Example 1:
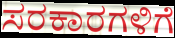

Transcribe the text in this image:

ಸರಕಾರಗಳಿಗೆ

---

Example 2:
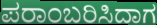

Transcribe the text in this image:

ಪರಾಂಬರಿಸಿದಾಗ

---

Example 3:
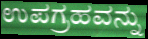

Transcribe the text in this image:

ಉಪಗ್ರಹವನ್ನು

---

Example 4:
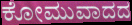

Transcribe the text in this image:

ಕೋಮುವಾದದ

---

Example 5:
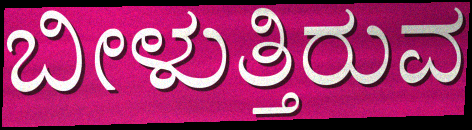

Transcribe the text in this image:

ಬೀಳುತ್ತಿರುವ